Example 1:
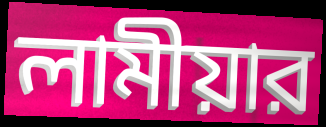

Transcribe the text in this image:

লামীয়ার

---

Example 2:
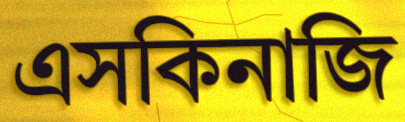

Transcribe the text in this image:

এসকিনাজি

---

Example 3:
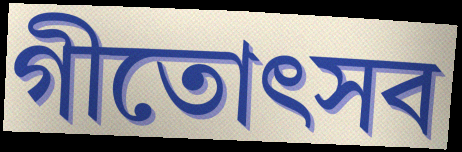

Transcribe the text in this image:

গীতোৎসব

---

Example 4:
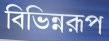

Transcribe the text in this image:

বিভিন্নরূপ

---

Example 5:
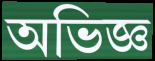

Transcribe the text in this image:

অভিজ্ঞ